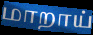
மாறாய்